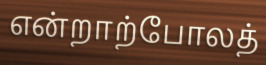
என்றாற்போலத்